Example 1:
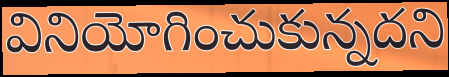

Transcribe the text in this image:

వినియోగించుకున్నదని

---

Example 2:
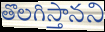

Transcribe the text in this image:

తొలగిస్తానని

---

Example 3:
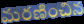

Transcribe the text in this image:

మరణించిన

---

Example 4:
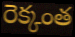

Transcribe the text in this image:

రెక్కంత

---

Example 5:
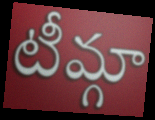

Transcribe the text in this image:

టీమ్గా